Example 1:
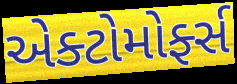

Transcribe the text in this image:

એક્ટોમોર્ફ્સ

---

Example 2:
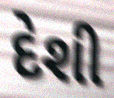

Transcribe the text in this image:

દેશી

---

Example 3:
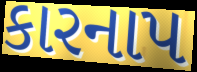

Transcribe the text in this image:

કારનાપ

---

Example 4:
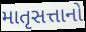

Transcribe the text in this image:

માતૃસત્તાનો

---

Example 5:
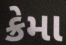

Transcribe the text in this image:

ક્રેમા